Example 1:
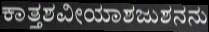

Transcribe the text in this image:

ಕಾತ್ತಶವೀಯಾಶಜುಶನನು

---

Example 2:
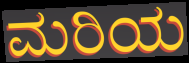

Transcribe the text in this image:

ಮರಿಯ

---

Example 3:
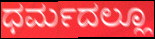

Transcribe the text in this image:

ಧರ್ಮದಲ್ಲೂ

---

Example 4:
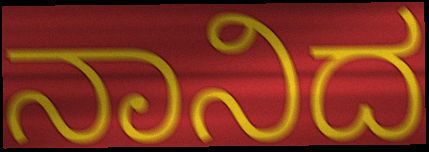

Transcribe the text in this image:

ನಾನಿದ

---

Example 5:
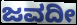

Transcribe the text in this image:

ಜವದೀ